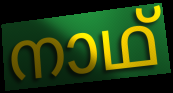
നാഥ്